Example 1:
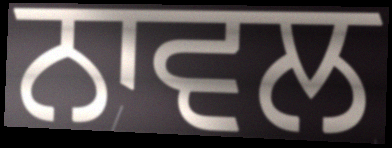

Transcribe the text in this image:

ਨਾਵਲ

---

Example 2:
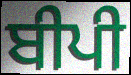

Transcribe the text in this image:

ਬੀਪੀ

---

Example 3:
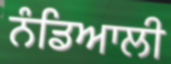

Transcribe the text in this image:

ਨੰਡਿਆਲੀ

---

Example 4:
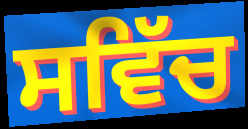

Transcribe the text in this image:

ਸਵਿੱਚ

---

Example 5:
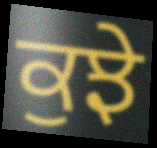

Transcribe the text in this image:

ਕੁਝੇ